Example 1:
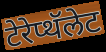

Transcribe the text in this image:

टेरेप्थॅलेट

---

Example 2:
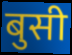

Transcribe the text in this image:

बुसी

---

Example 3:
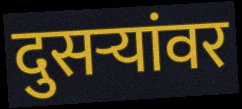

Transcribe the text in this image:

दुसर्‍यांवर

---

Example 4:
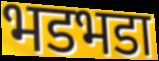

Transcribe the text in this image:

भडभडा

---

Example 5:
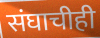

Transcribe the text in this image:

संघाचीही